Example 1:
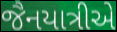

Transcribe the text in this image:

જૈનયાત્રીએ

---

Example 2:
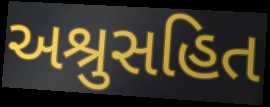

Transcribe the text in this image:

અશ્રુસહિત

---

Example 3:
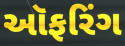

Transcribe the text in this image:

ઑફરિંગ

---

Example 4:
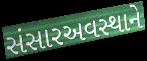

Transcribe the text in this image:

સંસારઅવસ્થાને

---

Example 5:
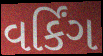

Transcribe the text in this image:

વર્કિંગ